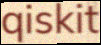
qiskit